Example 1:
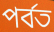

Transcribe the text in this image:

পর্বত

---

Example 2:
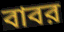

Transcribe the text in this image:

বাবর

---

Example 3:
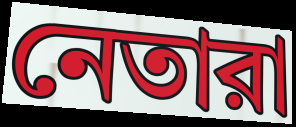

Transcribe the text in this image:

নেতারা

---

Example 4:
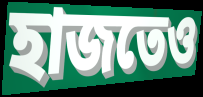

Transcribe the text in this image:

হাজতেও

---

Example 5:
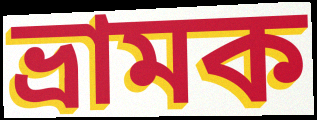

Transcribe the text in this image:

ভ্রামক